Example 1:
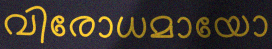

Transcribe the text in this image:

വിരോധമായോ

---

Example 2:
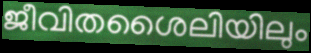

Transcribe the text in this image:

ജീവിതശൈലിയിലും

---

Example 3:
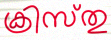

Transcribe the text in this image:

ക്രിസ്‌തു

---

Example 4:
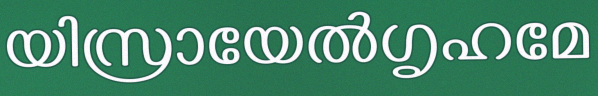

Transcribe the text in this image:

യിസ്രായേൽഗൃഹമേ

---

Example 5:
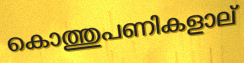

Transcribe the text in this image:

കൊത്തുപണികളാല്